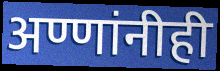
अण्णांनीही